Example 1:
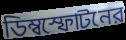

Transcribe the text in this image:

ডিম্বস্ফোটনের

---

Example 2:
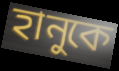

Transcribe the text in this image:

হানুকে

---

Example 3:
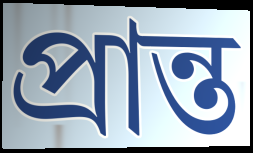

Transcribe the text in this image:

প্রান্ত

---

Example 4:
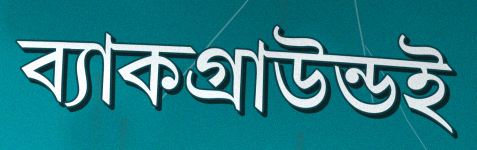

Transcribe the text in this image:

ব্যাকগ্রাউন্ডই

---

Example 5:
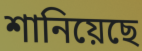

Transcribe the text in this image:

শানিয়েছে